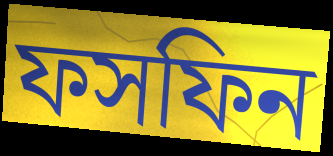
ফসফিন